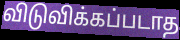
விடுவிக்கப்படாத